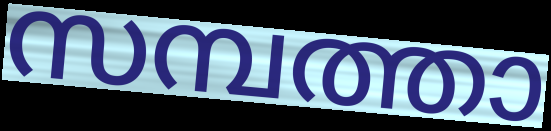
സമ്പത്താ